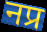
नप्र